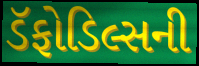
ડૅફોડિલ્સની